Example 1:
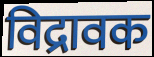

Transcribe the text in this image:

विद्रावक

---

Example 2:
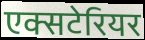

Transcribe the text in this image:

एक्सटेरियर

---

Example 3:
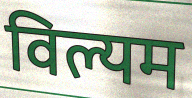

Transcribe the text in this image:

विल्यम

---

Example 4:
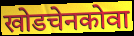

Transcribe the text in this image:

खोडचेनकोवा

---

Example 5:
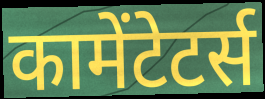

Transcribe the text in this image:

कामेंटेटर्स